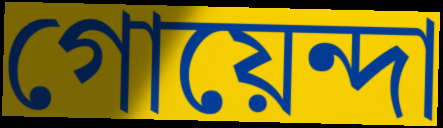
গোয়েন্দা